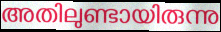
അതിലുണ്ടായിരുന്നു